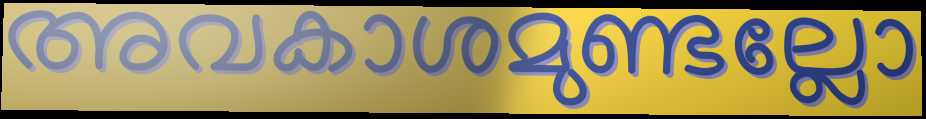
അവകാശമുണ്ടല്ലോ